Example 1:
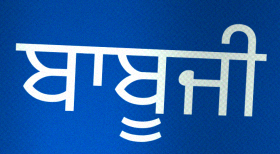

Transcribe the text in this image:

ਬਾਬੂਜੀ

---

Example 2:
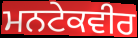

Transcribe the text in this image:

ਮਨਟੇਕਵੀਰ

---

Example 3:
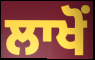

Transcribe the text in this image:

ਲਾਖੋਂ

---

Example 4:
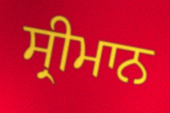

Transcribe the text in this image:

ਸ੍ਰੀਮਾਨ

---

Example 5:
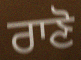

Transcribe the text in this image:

ਰਾਣੋ